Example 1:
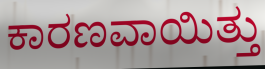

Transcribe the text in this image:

ಕಾರಣವಾಯಿತ್ತು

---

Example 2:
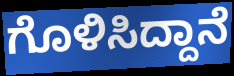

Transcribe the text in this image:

ಗೊಳಿಸಿದ್ದಾನೆ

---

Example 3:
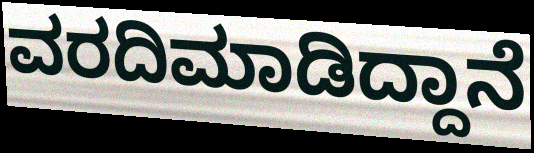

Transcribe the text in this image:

ವರದಿಮಾಡಿದ್ದಾನೆ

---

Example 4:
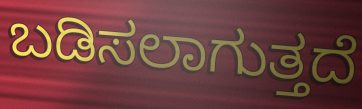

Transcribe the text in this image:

ಬಡಿಸಲಾಗುತ್ತದೆ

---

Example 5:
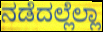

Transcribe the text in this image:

ನಡೆದಲ್ಲೆಲ್ಲಾ